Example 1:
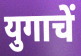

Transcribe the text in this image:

युगाचें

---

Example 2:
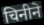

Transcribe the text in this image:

चिनीने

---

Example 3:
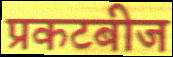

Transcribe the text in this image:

प्रकटबीज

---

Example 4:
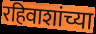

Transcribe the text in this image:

रहिवाशांच्या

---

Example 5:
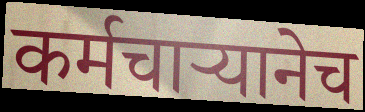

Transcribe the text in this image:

कर्मचाऱ्यानेच